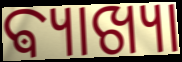
ଵ୍ଯାଖ୍ଯା